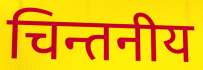
चिन्तनीय